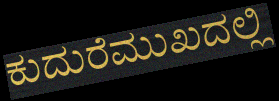
ಕುದುರೆಮುಖದಲ್ಲಿ